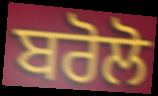
ਬਰੋਲੋ